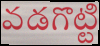
వడగొట్టి